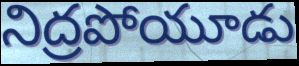
నిద్రపోయూడు